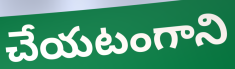
చేయటంగాని